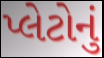
પ્લેટોનું